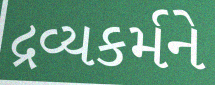
દ્રવ્યકર્મને